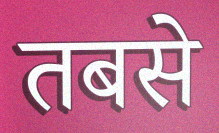
तबसे